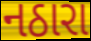
નઠારા